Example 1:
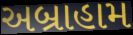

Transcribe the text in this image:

અબ્રાહામ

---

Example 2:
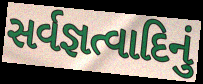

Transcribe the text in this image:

સર્વજ્ઞત્વાદિનું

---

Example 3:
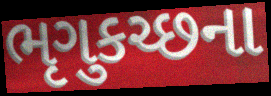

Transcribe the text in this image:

ભૃગુકચ્છના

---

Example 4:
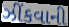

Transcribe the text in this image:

ઝીંકવાની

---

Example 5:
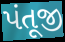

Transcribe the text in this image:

પંતૂજી